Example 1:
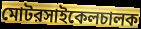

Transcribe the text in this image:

মোটরসাইকেলচালক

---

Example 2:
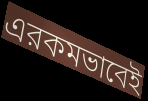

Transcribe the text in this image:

এরকমভাবেই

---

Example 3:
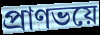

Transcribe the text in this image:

প্রাণভয়ে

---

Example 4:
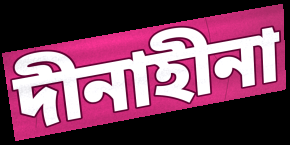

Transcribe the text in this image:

দীনাহীনা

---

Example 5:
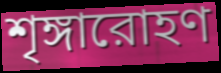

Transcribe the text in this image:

শৃঙ্গারোহণ